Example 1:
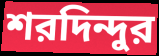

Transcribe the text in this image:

শরদিন্দুর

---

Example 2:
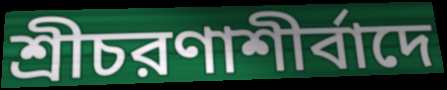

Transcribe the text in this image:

শ্রীচরণাশীর্বাদে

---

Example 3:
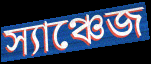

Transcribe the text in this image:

স্যাঞ্চেজ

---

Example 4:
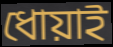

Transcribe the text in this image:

ধোয়াই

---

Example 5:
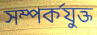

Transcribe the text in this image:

সম্পর্কযুক্ত